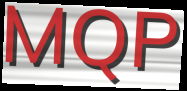
MQP